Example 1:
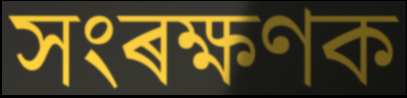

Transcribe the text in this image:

সংৰক্ষণক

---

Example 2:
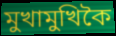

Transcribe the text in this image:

মুখামুখিকৈ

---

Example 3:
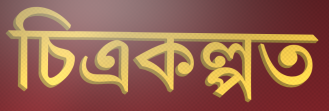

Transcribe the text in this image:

চিত্ৰকল্পত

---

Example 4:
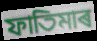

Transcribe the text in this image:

ফাতিমাৰ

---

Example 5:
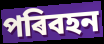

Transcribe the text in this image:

পৰিবহন